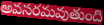
అవసరమవుతుంది